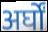
अर्घों